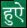
हुऐ